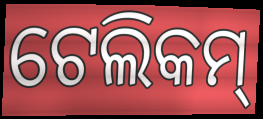
ଟେଲିକମ୍